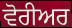
ਵੋਰੀਅਰ